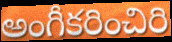
అంగీకరించిరి